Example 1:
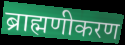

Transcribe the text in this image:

ब्राह्मणीकरण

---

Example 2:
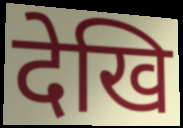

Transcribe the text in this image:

देखि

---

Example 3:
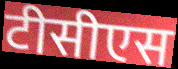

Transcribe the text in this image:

टीसीएस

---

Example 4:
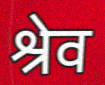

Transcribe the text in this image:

श्रेव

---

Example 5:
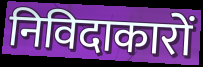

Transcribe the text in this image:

निविदाकारों